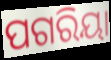
ପଗରିୟା